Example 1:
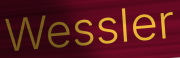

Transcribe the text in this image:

Wessler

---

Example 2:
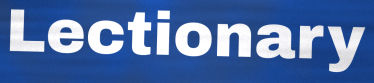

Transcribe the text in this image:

Lectionary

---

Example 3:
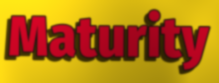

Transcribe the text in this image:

Maturity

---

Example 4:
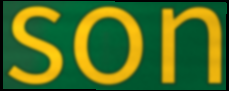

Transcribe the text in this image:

son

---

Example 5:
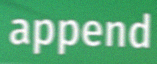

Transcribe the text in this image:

append